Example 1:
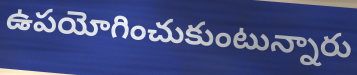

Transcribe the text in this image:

ఉపయోగించుకుంటున్నారు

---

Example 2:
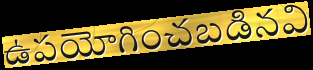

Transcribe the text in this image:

ఉపయోగించబడినవి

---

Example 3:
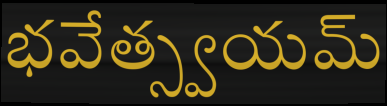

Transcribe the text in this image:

భవేత్స్వయమ్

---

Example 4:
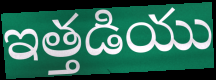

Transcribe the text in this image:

ఇత్తడియు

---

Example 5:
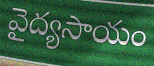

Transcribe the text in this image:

వైద్యసాయం